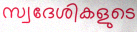
സ്വദേശികളുടെ